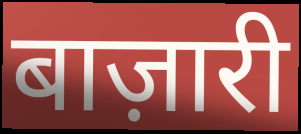
बाज़ारी